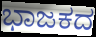
ಭಾಜಕದ